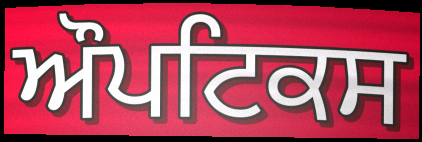
ਔਪਟਿਕਸ